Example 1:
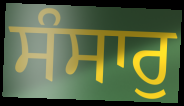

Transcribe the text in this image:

ਸੰਸਾਰੁ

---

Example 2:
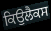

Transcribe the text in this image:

ਕਿਉਲੈਕਸ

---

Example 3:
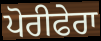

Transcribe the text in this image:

ਪੋਰੀਫੇਰਾ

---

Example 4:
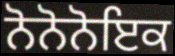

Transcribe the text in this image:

ਨੋਨੋਨੋਇਕ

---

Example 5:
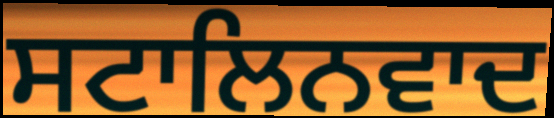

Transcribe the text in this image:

ਸਟਾਲਿਨਵਾਦ